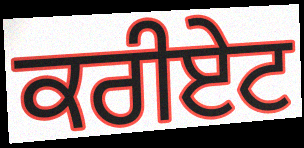
ਕਰੀਏਟ